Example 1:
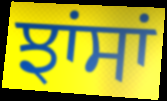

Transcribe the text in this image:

ਝਾਂਸਾਂ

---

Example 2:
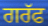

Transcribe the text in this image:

ਗਰੱਫ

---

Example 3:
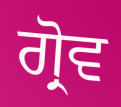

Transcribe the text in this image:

ਗ੍ਰੋਵ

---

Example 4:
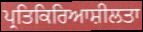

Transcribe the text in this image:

ਪ੍ਰਤਿਕਿਰਿਆਸ਼ੀਲਤਾ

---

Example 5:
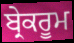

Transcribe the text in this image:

ਬ੍ਰੇਕਰੂਮ